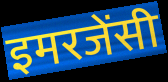
इमरजेंसी